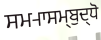
ਸਮ੍ਮਾਸਮ੍ਬੁਦ੍ਧੋ